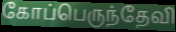
கோப்பெருந்தேவி